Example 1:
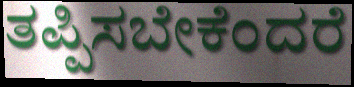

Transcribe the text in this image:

ತಪ್ಪಿಸಬೇಕೆಂದರೆ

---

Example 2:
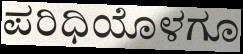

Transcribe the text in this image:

ಪರಿಧಿಯೊಳಗೂ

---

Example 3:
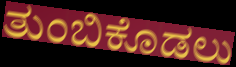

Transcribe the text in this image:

ತುಂಬಿಕೊಡಲು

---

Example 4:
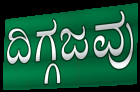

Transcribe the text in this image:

ದಿಗ್ಗಜವು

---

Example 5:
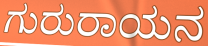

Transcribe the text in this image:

ಗುರುರಾಯನ